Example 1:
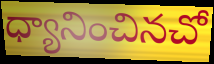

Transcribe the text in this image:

ధ్యానించినచో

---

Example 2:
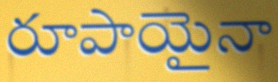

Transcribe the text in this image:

రూపాయైనా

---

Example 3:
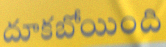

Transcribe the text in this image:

దూకబోయింది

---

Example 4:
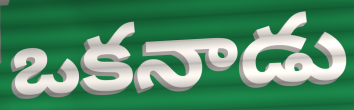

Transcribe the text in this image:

ఒకనాడు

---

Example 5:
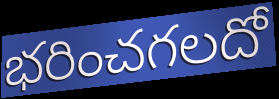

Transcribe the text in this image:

భరించగలదో